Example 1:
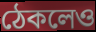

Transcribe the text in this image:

ঠেকলেও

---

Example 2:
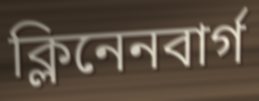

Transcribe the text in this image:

ক্লিনেনবার্গ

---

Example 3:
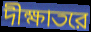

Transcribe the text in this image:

দীক্ষাতরে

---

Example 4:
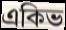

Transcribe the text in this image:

একিভ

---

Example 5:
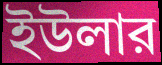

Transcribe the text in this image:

ইউলার